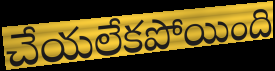
చేయలేకపోయింది